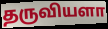
தருவியளா